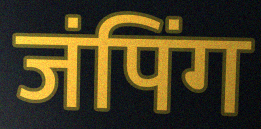
जंपिंग